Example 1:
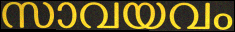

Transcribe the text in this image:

സാവയവം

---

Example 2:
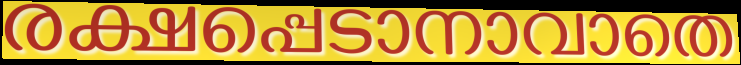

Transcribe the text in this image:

രക്ഷപ്പെടാനാവാതെ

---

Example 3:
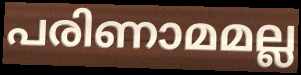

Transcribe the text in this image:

പരിണാമമല്ല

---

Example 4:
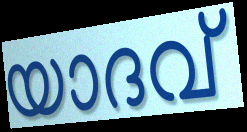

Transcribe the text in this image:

യാദവ്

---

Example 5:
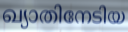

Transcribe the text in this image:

ഖ്യാതിനേടിയ